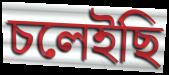
চলেইছি